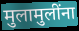
मुलामुलींना